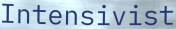
Intensivist